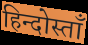
हिन्दोस्ताँ